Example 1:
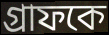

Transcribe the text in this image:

গ্রাফকে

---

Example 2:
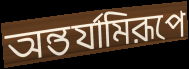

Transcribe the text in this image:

অন্তর্যামিরূপে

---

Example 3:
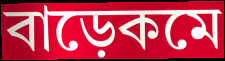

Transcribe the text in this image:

বাড়েকমে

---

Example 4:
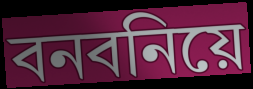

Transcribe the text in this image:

বনবনিয়ে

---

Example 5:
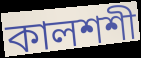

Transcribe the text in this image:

কালশশী